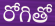
రోగితో